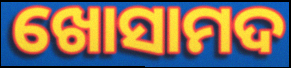
ଖୋସାମଦ